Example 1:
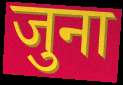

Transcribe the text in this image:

जुना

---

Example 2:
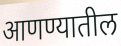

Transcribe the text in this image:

आणण्यातील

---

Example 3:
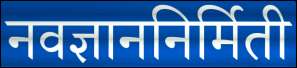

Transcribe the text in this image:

नवज्ञाननिर्मिती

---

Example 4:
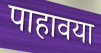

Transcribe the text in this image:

पाहावया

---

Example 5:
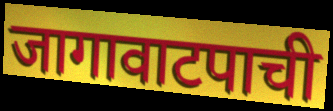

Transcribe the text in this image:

जागावाटपाची